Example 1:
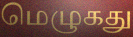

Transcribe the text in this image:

மெழுகது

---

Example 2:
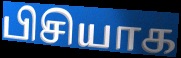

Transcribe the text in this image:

பிசியாக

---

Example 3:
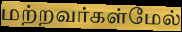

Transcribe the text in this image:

மற்றவர்கள்மேல்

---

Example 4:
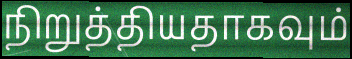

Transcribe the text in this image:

நிறுத்தியதாகவும்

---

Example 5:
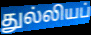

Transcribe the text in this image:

துல்லியப்